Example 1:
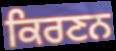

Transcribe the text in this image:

ਕਿਰਣਨ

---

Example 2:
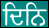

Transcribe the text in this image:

ਦਿਨਿ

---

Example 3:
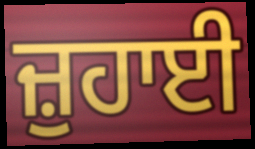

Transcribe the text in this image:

ਜ਼ੁਹਾਈ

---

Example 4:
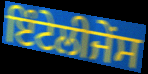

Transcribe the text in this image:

ਇੰਟੇਲੀਜੇੰਸ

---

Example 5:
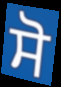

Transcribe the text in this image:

ਸੋ